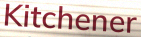
Kitchener